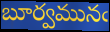
బూర్వమునఁ